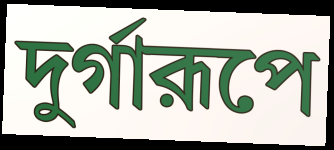
দুর্গারূপে